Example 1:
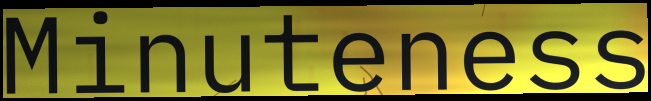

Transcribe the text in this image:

Minuteness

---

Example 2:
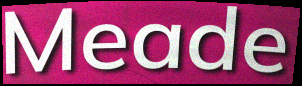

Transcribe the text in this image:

Meade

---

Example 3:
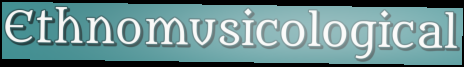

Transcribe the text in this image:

Ethnomusicological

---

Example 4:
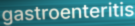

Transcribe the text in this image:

gastroenteritis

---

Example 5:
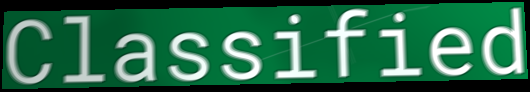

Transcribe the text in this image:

Classified